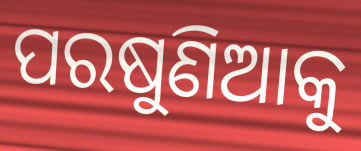
ପରଷୁଣିଆକୁ